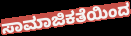
ಸಾಮಾಜಿಕತೆಯಿಂದ